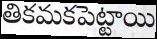
తికమకపెట్టాయి